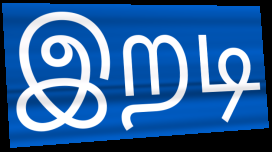
இறடி